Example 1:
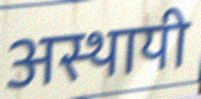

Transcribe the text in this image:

अस्थायी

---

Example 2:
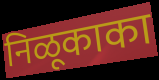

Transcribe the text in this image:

निळूकाका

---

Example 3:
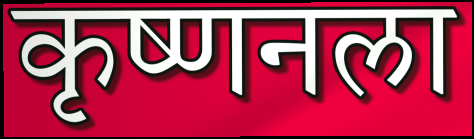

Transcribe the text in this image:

कृष्णनला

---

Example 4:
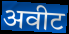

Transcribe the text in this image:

अवीट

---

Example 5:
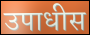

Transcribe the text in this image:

उपाधीस